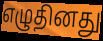
எழுதினது